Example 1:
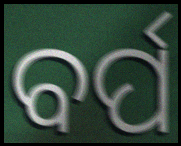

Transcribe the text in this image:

ବର୍ପ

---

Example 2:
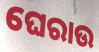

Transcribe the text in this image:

ଘେରାଉ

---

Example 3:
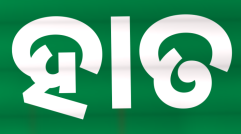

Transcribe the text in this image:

ହାତ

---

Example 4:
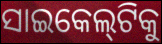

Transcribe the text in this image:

ସାଇକେଲ୍‌ଟିକୁ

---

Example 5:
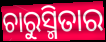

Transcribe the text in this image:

ଚାରୁସ୍ମିତାର